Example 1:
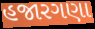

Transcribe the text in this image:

હજારગણા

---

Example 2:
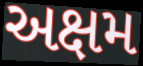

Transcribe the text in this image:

અક્ષમ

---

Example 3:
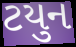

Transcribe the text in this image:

ટયુન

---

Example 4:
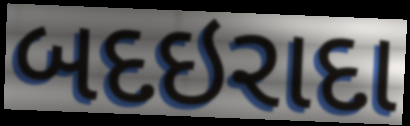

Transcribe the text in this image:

બદઇરાદા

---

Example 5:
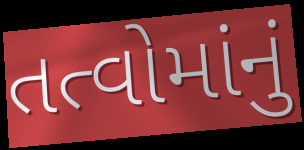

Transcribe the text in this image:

તત્વોમાંનું